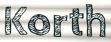
Korth